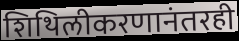
शिथिलीकरणानंतरही